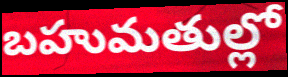
బహుమతుల్లో